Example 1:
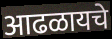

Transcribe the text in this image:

आढळायचे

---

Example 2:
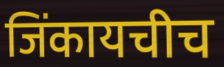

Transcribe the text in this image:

जिंकायचीच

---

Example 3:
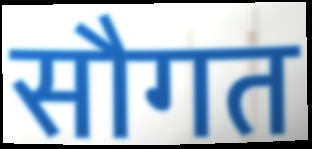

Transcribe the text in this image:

सौगत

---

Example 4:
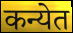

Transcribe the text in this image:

कन्येत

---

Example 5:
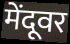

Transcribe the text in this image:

मेंदूवर